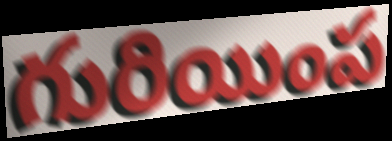
గురియింప